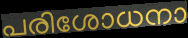
പരിശോധനാ